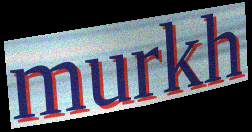
murkh